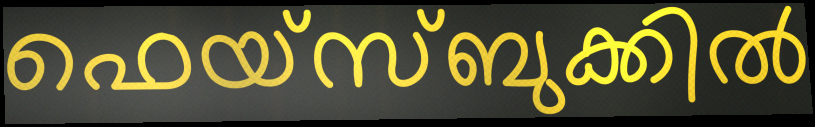
ഫെയ്സ്ബുക്കിൽ